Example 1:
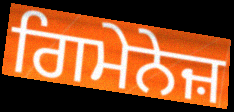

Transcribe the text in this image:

ਗਿਮੇਨੇਜ਼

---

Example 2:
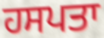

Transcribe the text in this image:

ਹਸਪਤਾ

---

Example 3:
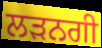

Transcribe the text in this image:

ਲੜਨਗੀ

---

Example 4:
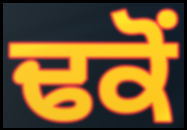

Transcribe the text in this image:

ਢਕੋਂ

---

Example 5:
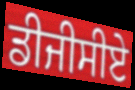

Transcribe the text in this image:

ਡੀਜੀਸੀਏ